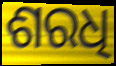
ଶରଧି